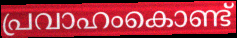
പ്രവാഹംകൊണ്ട്